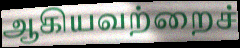
ஆகியவற்றைச்